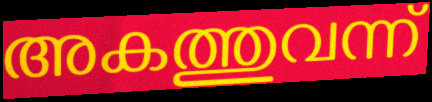
അകത്തുവന്ന്